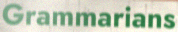
Grammarians